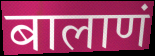
बालाणं